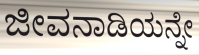
ಜೀವನಾಡಿಯನ್ನೇ